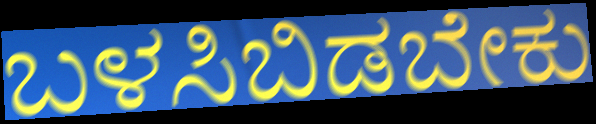
ಬಳಸಿಬಿಡಬೇಕು